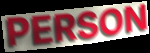
PERSON